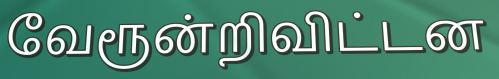
வேரூன்றிவிட்டன